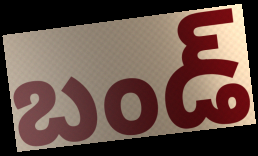
బండ్